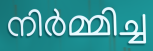
നിർമ്മിച്ച